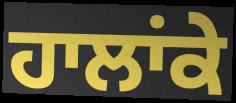
ਹਾਲਾਂਕੇ